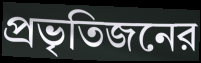
প্রভৃতিজনের